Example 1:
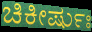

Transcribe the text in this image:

ಚಿಕೀರ್ಷುಃ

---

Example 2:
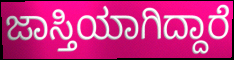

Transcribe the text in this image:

ಜಾಸ್ತಿಯಾಗಿದ್ದಾರೆ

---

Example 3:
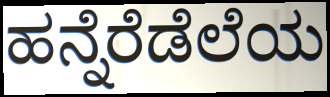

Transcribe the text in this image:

ಹನ್ನೆರೆಡೆಲೆಯ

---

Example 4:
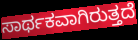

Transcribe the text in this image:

ಸಾರ್ಥಕವಾಗಿರುತ್ತದೆ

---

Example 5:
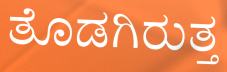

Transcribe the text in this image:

ತೊಡಗಿರುತ್ತ